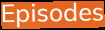
Episodes